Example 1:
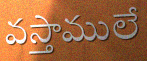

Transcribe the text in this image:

వస్తాములే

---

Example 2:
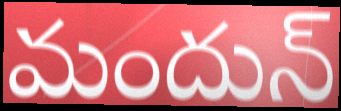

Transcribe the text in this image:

మందున్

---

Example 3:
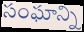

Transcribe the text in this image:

సంఘాన్ని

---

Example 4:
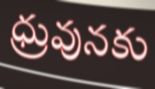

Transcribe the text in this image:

ధ్రువునకు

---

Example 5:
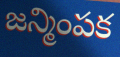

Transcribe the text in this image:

జన్మింపక